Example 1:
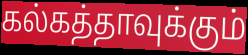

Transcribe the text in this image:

கல்கத்தாவுக்கும்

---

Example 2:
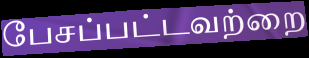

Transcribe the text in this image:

பேசப்பட்டவற்றை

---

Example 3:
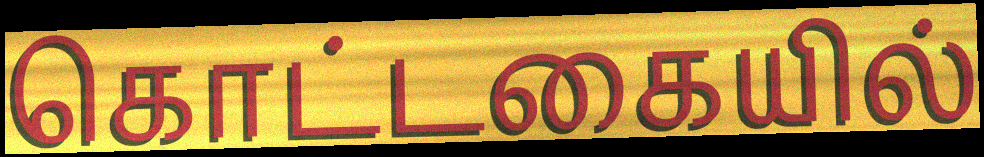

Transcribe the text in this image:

கொட்டகையில்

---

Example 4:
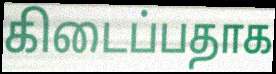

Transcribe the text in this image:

கிடைப்பதாக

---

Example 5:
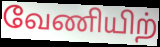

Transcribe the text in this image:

வேணியிற்